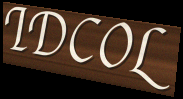
IDCOL